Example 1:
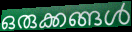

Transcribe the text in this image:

ഒരുക്കങ്ങൾ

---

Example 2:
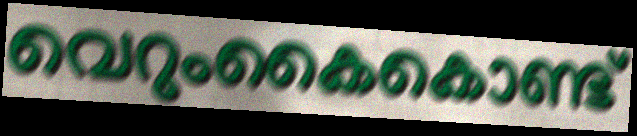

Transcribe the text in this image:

വെറുംകൈകൊണ്ട്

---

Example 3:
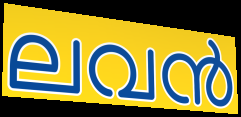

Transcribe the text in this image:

ലവൻ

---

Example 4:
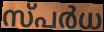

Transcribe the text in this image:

സ്പർധ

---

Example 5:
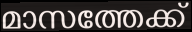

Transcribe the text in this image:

മാസത്തേക്ക്